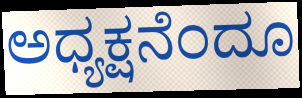
ಅಧ್ಯಕ್ಷನೆಂದೂ